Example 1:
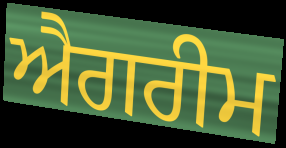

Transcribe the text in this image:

ਐਗਰੀਮ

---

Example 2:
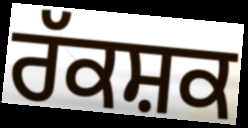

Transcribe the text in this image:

ਰੱਕਸ਼ਕ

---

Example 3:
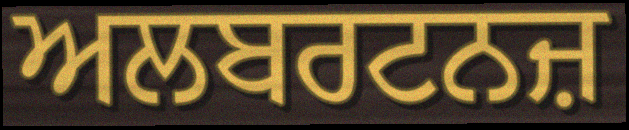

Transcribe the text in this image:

ਅਲਬਰਟਨਜ਼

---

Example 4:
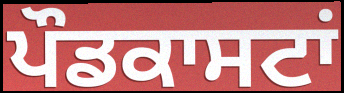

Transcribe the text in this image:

ਪੌਡਕਾਸਟਾਂ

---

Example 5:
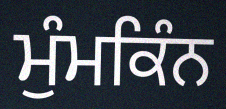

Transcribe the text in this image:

ਮੁੰਮਕਿੰਨ